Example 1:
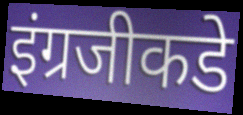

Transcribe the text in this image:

इंग्रजीकडे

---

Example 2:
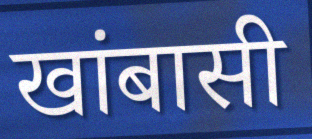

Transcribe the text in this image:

खांबासी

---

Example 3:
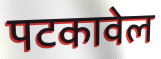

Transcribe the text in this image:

पटकावेल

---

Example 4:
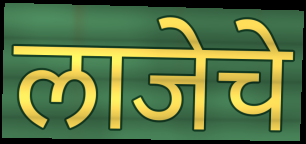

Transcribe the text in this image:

लाजेचे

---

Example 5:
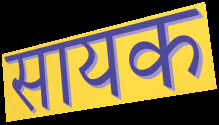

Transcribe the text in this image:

सायक